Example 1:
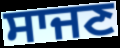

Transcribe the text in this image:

ਸਾਜਣ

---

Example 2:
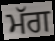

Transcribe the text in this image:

ਮੱਗ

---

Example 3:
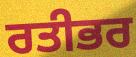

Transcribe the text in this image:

ਰਤੀਭਰ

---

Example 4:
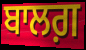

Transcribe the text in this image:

ਬਾਲਗ਼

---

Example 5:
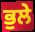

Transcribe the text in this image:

ਭੁਲੇ